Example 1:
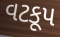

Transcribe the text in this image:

વટકૂપ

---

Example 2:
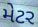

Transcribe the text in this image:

મેટર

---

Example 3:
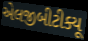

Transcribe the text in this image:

એલજીબીટીક્યૂ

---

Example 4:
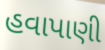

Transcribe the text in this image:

હવાપાણી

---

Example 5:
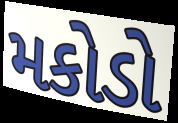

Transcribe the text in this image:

મકોડો